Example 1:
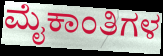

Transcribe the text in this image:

ಮೈಕಾಂತಿಗಳ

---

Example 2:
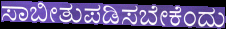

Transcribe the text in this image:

ಸಾಬೀತುಪಡಿಸಬೇಕೆಂದು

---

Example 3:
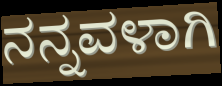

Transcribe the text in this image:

ನನ್ನವಳಾಗಿ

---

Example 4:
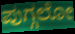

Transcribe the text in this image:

ಪುಗ್ಗಲೋ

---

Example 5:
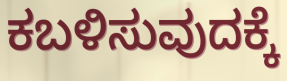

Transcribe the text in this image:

ಕಬಳಿಸುವುದಕ್ಕೆ